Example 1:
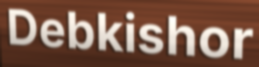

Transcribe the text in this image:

Debkishor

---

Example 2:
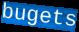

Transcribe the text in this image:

bugets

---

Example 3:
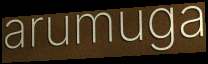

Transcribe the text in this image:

arumuga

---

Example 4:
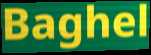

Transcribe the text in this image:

Baghel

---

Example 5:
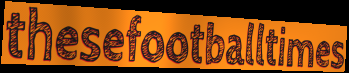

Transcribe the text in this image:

thesefootballtimes